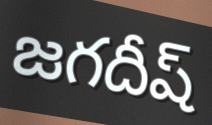
జగదీష్